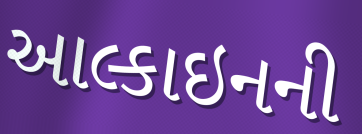
આલ્કાઇનની